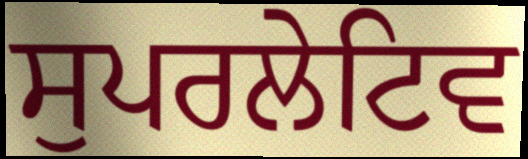
ਸੁਪਰਲੇਟਿਵ